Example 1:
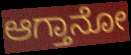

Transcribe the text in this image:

ಆಗ್ತಾನೋ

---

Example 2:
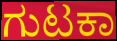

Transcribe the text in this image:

ಗುಟಕಾ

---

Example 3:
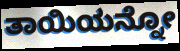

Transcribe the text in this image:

ತಾಯಿಯನ್ನೋ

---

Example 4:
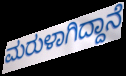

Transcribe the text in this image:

ಮರುಳಾಗಿದ್ದಾನೆ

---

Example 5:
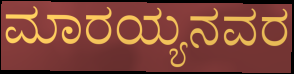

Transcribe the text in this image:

ಮಾರಯ್ಯನವರ